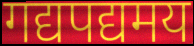
गद्यपद्यमय